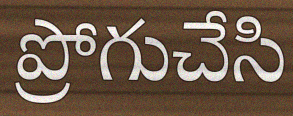
ప్రోగుచేసి